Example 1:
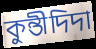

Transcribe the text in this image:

কুন্তীদিদা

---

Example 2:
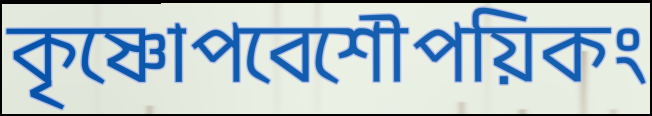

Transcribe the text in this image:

কৃষ্ণোপবেশৌপয়িকং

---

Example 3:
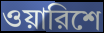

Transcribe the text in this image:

ওয়ারিশে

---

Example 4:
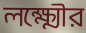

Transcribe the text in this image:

লক্ষ্মৌর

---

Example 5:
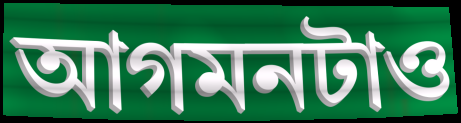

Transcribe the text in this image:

আগমনটাও